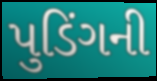
પુડિંગની